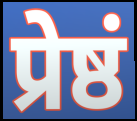
प्रेष्ठं